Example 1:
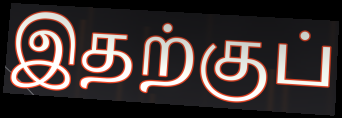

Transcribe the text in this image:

இதற்குப்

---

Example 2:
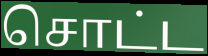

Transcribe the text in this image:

சொட்ட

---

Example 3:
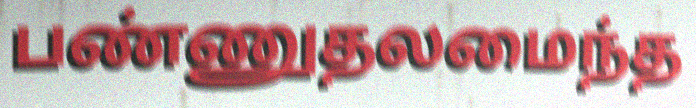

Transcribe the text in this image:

பண்ணுதலமைந்த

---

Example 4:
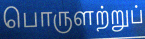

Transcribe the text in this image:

பொருளற்றுப்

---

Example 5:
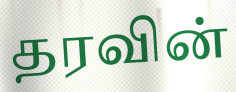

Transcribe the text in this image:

தரவின்